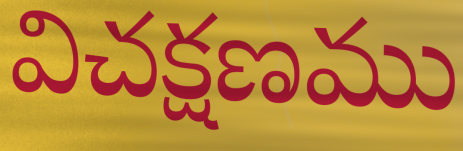
విచక్షణము